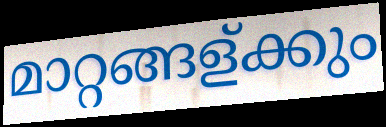
മാറ്റങ്ങള്ക്കും